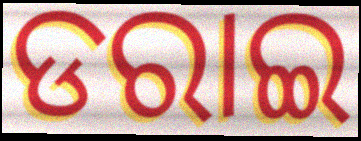
ଡରାଇ